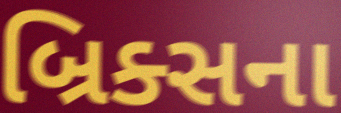
બ્રિક્સના